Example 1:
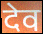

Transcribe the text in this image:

देव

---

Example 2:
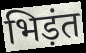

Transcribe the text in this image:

भिड़ंत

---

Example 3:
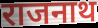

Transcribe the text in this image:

राजनाथ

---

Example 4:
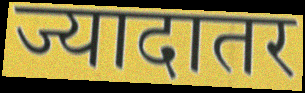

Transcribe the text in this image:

ज्यादातर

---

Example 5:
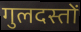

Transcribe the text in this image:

गुलदस्तों